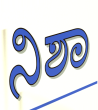
ನಿಶಾ